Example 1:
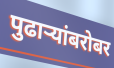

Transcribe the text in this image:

पुढाऱ्यांबरोबर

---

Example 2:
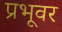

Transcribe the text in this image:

प्रभूवर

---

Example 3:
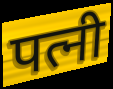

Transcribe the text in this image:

पत्‍नी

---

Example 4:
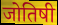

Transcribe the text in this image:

जोतिषी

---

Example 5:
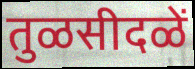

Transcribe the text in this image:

तुळसीदळें